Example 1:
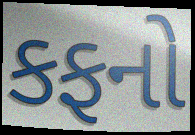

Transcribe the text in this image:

કફનો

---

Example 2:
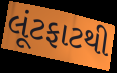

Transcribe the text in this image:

લૂંટફાટથી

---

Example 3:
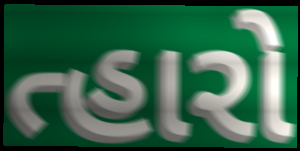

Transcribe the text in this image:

ત્હારો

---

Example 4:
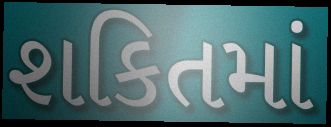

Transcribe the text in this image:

શકિતમાં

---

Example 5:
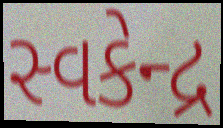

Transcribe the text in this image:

સ્વકેન્દ્ર